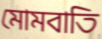
মোমবাতি